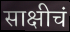
साक्षीचं